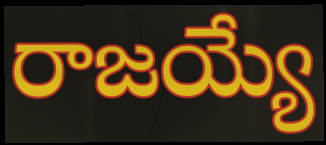
రాజయ్యే